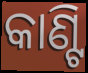
କାଣ୍ଟି